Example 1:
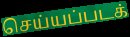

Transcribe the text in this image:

செய்யப்படக்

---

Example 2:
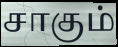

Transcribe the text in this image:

சாகும்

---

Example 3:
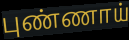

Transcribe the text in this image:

புண்ணாய்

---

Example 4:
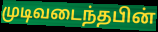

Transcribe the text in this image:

முடிவடைந்தபின்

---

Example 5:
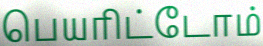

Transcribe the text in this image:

பெயரிட்டோம்